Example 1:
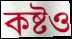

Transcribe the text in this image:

কষ্টও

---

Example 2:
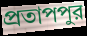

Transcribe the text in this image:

প্রতাপপুর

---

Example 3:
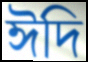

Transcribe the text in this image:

ঈদি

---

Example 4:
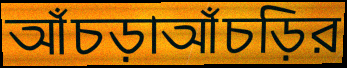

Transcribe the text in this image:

আঁচড়াআঁচড়ির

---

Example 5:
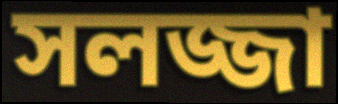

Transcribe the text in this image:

সলজ্জা